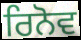
ਰਿਨੋਵ